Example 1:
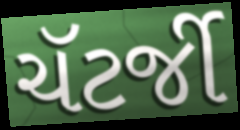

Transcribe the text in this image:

ચૅટર્જી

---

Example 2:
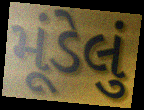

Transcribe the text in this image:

મૂંડેલું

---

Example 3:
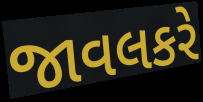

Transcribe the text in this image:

જાવલકરે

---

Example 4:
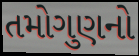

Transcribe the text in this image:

તમોગુણનો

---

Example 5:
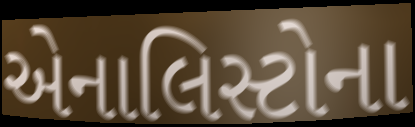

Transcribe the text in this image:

એનાલિસ્ટોના